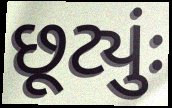
છૂટ્યુંઃ